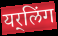
यर्लिंग